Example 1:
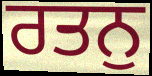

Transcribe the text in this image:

ਰਤਨੁ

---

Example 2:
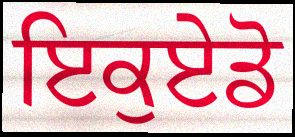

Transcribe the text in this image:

ਇਕੁਏਡੋ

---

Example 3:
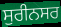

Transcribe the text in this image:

ਸੁਰੀਨਸਰ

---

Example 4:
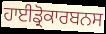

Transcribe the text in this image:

ਹਾਈਡ੍ਰੋਕਾਰਬਨਸ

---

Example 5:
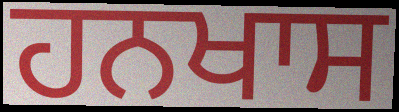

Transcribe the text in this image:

ਹਨਖਾਸ